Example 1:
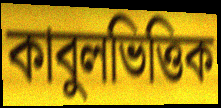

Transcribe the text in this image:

কাবুলভিত্তিক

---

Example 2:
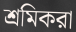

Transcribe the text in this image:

শ্রমিকরা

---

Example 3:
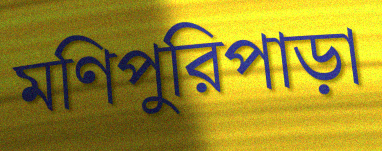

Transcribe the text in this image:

মণিপুরিপাড়া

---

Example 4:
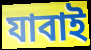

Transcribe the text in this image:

যাবাই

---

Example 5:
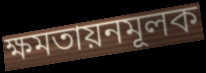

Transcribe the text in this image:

ক্ষমতায়নমূলক